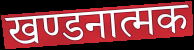
खण्डनात्मक